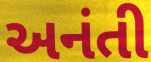
અનંતી